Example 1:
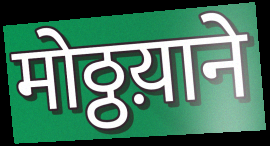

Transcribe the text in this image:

मोठ्ठय़ाने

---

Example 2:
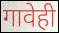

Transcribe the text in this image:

गावेही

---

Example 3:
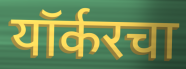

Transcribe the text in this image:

यॉर्करचा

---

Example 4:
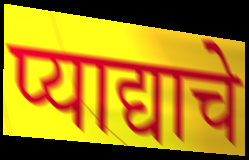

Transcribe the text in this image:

प्याद्याचे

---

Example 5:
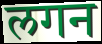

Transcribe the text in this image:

लगन